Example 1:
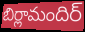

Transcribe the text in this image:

బిర్లామందిర్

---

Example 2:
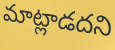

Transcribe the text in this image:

మాట్లాడదని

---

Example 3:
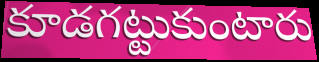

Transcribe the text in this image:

కూడగట్టుకుంటారు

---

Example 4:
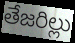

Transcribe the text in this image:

తేజరిల్లు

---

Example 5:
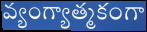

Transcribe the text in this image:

వ్యంగ్యాత్మకంగా